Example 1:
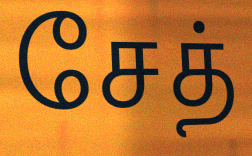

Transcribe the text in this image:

சேத்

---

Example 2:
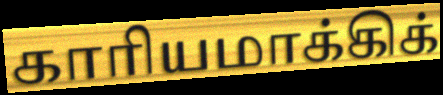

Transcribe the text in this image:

காரியமாக்கிக்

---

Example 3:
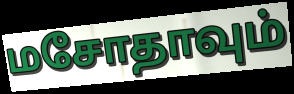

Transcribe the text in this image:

மசோதாவும்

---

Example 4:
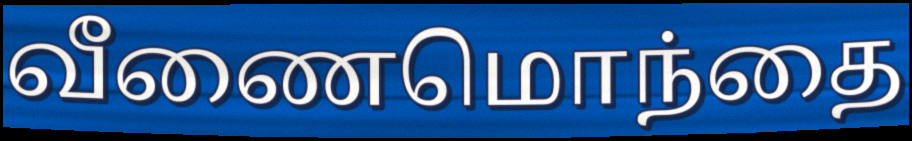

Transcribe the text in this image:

வீணைமொந்தை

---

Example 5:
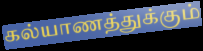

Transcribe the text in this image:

கல்யாணத்துக்கும்